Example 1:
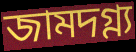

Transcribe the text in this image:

জামদগ্ন্য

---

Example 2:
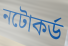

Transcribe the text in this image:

নটোকর্ড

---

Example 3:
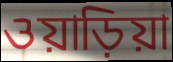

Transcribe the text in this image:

ওয়াড়িয়া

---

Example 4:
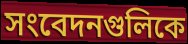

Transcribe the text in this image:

সংবেদনগুলিকে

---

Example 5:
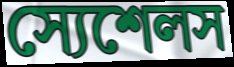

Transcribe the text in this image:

স্যেশেলস